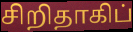
சிறிதாகிப்